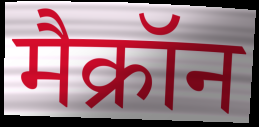
मैक्रॉन